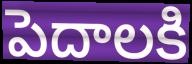
పెదాలకి